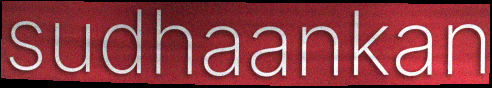
sudhaankan